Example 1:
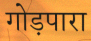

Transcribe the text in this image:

गोड़पारा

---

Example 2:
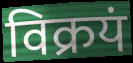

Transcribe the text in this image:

विक्रयं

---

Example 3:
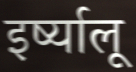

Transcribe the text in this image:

इर्ष्यालू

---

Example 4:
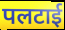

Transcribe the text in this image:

पलटाई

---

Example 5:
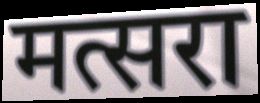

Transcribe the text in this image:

मत्सरा